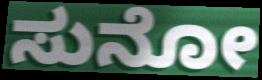
ಸುನೋ